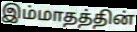
இம்மாதத்தின்